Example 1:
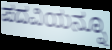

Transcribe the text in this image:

ಪದವಿಯನ್ನೂ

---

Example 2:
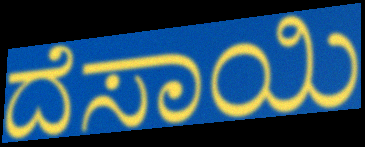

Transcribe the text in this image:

ದೆಸಾಯಿ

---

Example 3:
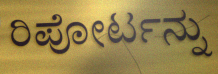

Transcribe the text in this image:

ರಿಪೋರ್ಟನ್ನು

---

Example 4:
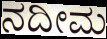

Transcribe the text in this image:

ನದೀಮ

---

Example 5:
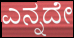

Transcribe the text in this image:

ಎನ್ನದೇ